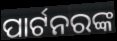
ପାର୍ଟନରଙ୍କ